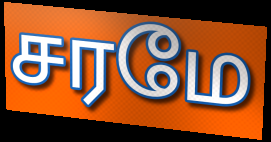
சரமே